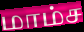
மாம்ச